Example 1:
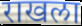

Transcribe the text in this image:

राखला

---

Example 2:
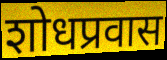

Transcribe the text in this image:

शोधप्रवास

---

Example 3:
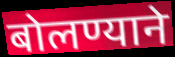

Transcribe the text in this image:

बोलण्याने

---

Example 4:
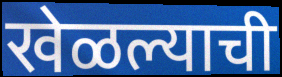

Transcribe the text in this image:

खेळल्याची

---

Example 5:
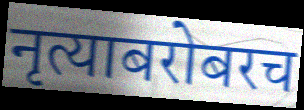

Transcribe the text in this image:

नृत्याबरोबरच